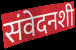
संवेदनशी